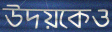
উদয়কেও